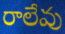
రాలేవు